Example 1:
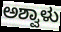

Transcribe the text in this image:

ಅಶ್ವಾಳು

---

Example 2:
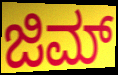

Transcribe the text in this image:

ಜಿಮ್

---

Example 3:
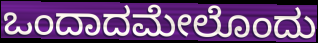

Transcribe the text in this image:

ಒಂದಾದಮೇಲೊಂದು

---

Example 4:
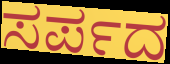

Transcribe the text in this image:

ಸರ್ಪದ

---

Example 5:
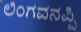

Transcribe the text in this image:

ಲಿಂಗವನಪ್ಪಿ